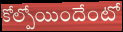
కోల్పోయిందేంటో